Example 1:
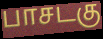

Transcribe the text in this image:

பாசடகு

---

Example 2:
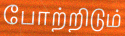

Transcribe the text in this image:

போற்றிடும்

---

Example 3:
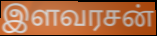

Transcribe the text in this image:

இளவரசன்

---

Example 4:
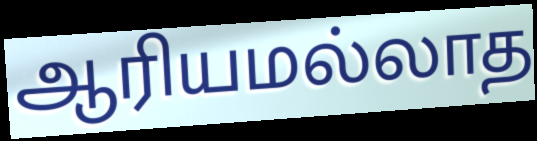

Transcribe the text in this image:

ஆரியமல்லாத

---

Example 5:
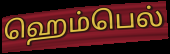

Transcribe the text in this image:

ஹெம்பெல்